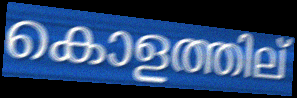
കൊളത്തില്